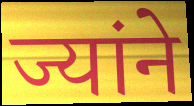
ज्यांने